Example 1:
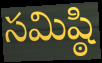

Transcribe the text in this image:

సమిష్ఠి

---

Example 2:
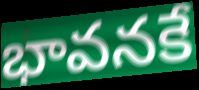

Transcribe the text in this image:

భావనకే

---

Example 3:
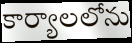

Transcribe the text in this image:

కార్యాలలోను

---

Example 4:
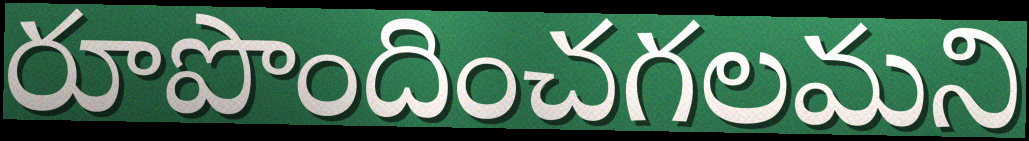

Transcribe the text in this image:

రూపొందించగలమని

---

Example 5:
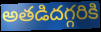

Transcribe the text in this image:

అతడిదగ్గరికి